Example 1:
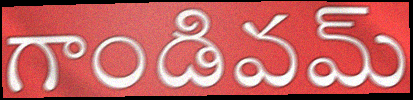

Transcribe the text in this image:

గాండివమ్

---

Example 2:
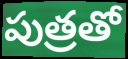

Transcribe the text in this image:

పుత్రతో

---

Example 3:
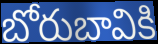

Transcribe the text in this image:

బోరుబావికి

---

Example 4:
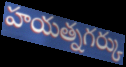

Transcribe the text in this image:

హయత్నగర్కు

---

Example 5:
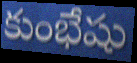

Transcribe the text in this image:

కుంభేషు